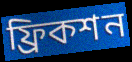
ফ্রিকশন